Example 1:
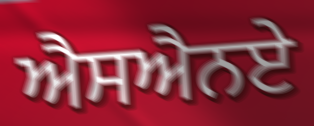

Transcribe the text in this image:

ਐਸਐਨਏ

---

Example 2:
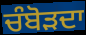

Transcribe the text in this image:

ਚੰਬੋੜਦਾ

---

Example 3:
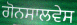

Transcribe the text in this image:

ਗੋਨਸਾਲਵੇਸ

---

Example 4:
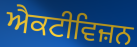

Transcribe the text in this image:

ਐਕਟੀਵਿਜ਼ਨ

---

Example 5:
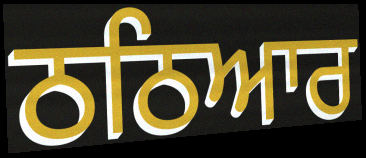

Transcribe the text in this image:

ਠਠਿਆਰ